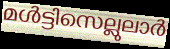
മൾട്ടിസെല്ലുലാർ